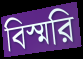
বিস্মরি